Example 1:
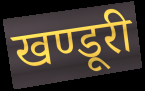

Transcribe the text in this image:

खण्डूरी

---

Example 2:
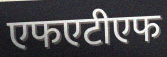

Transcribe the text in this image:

एफएटीएफ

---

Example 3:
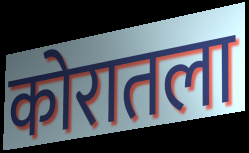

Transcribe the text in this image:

कोरातला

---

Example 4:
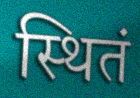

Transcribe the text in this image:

स्थितं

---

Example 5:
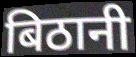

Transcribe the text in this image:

बिठानी